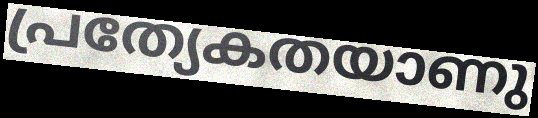
പ്രത്യേകതയാണു